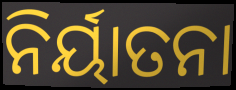
ନିର୍ୟାତନା